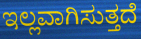
ಇಲ್ಲವಾಗಿಸುತ್ತದೆ